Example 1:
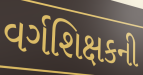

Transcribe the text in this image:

વર્ગશિક્ષકની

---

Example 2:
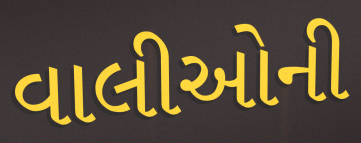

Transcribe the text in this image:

વાલીઓની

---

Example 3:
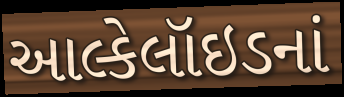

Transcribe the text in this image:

આલ્કેલૉઇડનાં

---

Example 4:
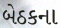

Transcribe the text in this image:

બેઠકના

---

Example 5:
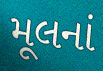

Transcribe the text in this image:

મૂલનાં